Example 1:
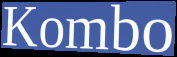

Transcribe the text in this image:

Kombo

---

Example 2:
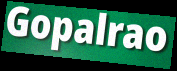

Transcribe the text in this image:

Gopalrao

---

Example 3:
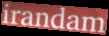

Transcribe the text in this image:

irandam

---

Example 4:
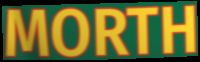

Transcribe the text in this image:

MORTH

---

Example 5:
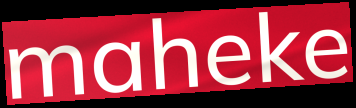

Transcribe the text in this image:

maheke